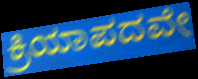
ಕ್ರಿಯಾಪದವೇ